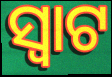
ସ୍ୱାଟ